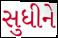
સુધીને